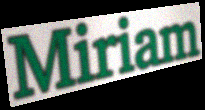
Miriam